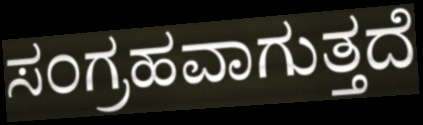
ಸಂಗ್ರಹವಾಗುತ್ತದೆ